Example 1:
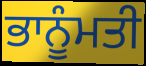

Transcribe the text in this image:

ਭਾਨੂੰਮਤੀ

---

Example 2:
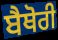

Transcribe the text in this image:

ਬੈਥੋਰੀ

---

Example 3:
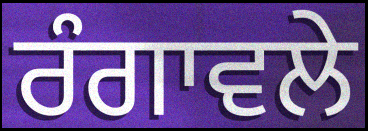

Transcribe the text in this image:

ਰੰਗਾਵਲੇ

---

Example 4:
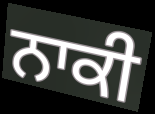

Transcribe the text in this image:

ਨਾਕੀ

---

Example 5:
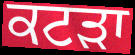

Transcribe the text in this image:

ਕਟੜਾ